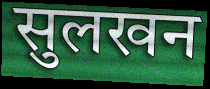
सुलखन